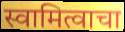
स्वामित्वाचा